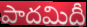
పాదమిదీ